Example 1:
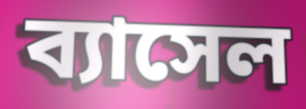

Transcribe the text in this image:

ব্যাসেল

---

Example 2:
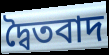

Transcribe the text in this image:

দ্বৈতবাদ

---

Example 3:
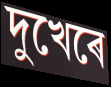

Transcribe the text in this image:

দুখেৰে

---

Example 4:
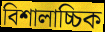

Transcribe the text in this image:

বিশালাচ্চিক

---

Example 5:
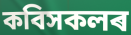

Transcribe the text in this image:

কবিসকলৰ